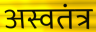
अस्वतंत्र